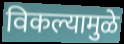
विकल्यामुळे